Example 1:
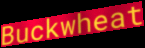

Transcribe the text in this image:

Buckwheat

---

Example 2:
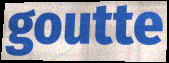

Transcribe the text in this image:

goutte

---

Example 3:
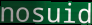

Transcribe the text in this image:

nosuid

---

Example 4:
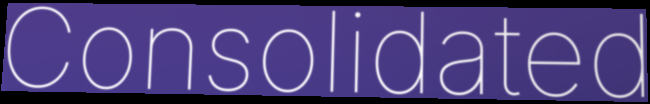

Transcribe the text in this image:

Consolidated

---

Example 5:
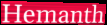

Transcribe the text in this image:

Hemanth